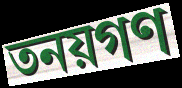
তনয়গণ